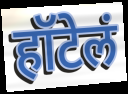
हॉटेलं